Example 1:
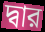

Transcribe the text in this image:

দ্বার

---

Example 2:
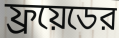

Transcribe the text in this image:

ফ্রয়েডের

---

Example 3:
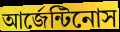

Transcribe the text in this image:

আর্জেন্টিনোস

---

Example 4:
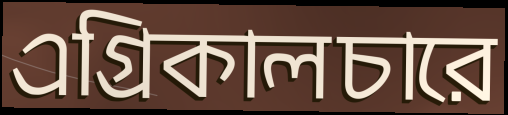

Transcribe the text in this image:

এগ্রিকালচারে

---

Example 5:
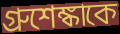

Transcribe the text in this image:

গ্রুশেঙ্কাকে